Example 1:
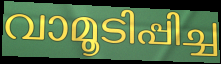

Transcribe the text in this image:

വാമൂടിപ്പിച്ച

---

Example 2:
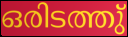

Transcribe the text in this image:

ഒരിടത്തു്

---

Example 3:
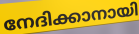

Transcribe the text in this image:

നേദിക്കാനായി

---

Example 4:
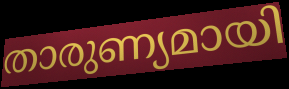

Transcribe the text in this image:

താരുണ്യമായി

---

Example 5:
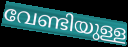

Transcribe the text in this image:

വേണ്ടിയുള്ള